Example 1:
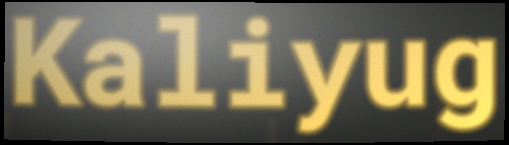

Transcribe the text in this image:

Kaliyug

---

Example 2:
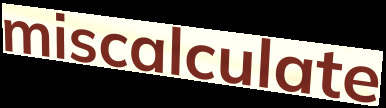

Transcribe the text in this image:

miscalculate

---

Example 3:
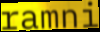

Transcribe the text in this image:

ramni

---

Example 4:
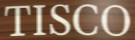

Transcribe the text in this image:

TISCO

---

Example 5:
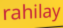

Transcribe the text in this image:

rahilay